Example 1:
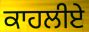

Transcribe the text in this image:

ਕਾਹਲੀਏ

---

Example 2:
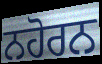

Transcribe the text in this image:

ਨਹੋਰਨ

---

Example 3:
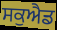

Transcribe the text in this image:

ਸਕੁਐਡ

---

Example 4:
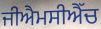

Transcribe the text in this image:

ਜੀਐਮਸੀਐੱਚ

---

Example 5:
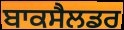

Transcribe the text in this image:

ਬਾਕਸੈਲਡਰ